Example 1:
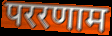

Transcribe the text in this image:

पररणाम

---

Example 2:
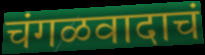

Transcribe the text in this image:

चंगळवादाचं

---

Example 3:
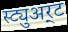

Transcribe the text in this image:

स्ट्युअर्ट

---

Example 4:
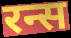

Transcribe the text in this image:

रन्स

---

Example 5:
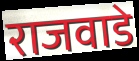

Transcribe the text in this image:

राजवाडे